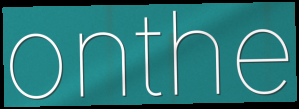
onthe